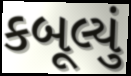
કબૂલ્યું